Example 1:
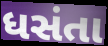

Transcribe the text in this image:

ધસંતા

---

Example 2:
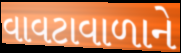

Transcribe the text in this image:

વાવટાવાળાને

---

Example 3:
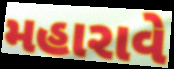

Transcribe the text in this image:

મહારાવે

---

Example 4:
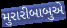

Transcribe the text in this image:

મુરારીબાબુએ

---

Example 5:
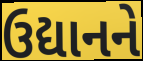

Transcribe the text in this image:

ઉદ્યાનને